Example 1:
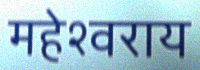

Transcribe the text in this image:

महेश्वराय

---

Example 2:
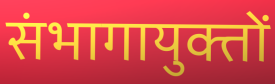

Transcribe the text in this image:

संभागायुक्तों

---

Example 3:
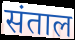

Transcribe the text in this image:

संताल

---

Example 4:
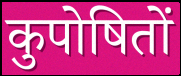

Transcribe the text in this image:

कुपोषितों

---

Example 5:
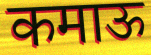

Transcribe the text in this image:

कमाऊ